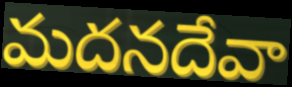
మదనదేవా